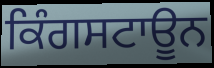
ਕਿੰਗਸਟਾਊਨ